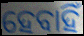
ହେବାହିଁ